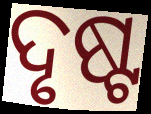
ଦୃଷ୍ଟ